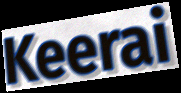
Keerai